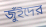
জুঁইদের